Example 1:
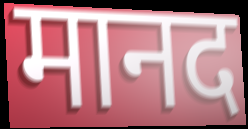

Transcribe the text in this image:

मानद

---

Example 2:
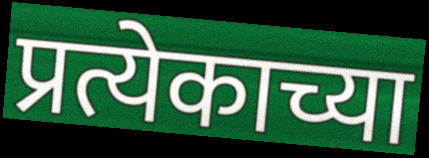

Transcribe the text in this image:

प्रत्येकाच्या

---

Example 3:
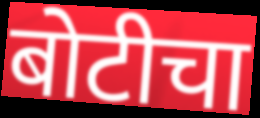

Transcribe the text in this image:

बोटीचा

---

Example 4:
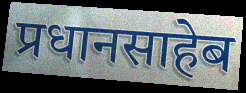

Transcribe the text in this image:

प्रधानसाहेब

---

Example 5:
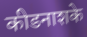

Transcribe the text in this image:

कीडनाशके